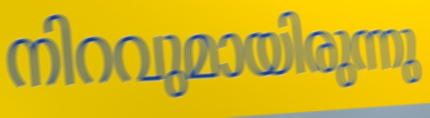
നിറവുമായിരുന്നു